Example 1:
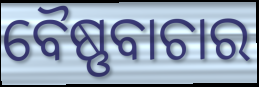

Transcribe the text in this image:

ବୈଷ୍ଣବାଚାର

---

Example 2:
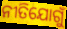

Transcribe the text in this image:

ନୀତିଯୋଗୁଁ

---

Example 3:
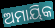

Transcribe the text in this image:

ଅମାୟିକ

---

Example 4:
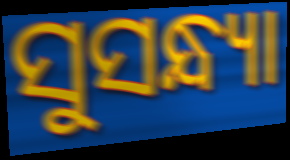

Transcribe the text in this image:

ସୁସନ୍ଧ୍ୟା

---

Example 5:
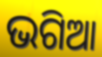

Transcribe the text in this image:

ଭଗିଆ